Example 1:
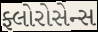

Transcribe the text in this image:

ફ્લોરોસેન્સ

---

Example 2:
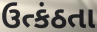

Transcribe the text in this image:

ઉત્કંઠતા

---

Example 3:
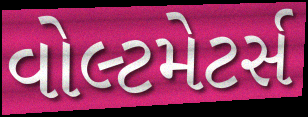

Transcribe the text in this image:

વોલ્ટમેટર્સ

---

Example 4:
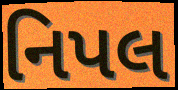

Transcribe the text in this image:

નિપલ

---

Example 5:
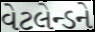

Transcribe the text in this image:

વેટલેન્ડને